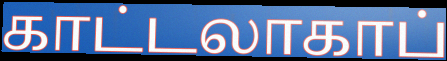
காட்டலாகாப்